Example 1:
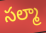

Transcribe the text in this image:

సల్మా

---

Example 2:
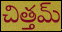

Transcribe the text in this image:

చిత్తమ్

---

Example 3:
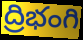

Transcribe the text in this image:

ద్రిభంగి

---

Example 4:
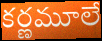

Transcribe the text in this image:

కర్ణమూలే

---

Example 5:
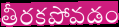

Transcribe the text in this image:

తీరకపోవడం